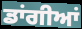
ਡਾਂਗੀਆਂ